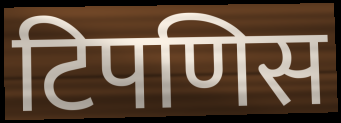
टिपणिस